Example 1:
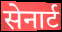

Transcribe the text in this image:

सेनार्ट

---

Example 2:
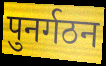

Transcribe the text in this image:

पुनर्गठन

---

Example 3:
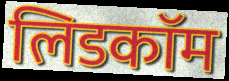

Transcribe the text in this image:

लिडकॉम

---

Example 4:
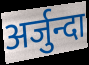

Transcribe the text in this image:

अर्जुन्दा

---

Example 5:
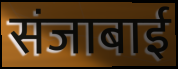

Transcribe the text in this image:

संजाबाई